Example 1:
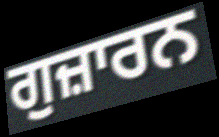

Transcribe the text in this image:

ਗੁਜ਼ਾਰਨ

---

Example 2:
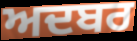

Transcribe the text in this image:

ਅਦਬਰ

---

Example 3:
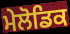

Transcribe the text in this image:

ਮੇਲੋਡਿਕ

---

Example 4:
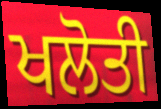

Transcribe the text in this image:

ਖਲੋਤੀ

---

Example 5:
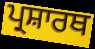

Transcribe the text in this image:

ਪ੍ਰਸ਼ਾਰਥ